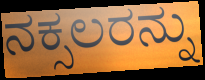
ನಕ್ಸಲರನ್ನು